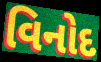
વિનોદ